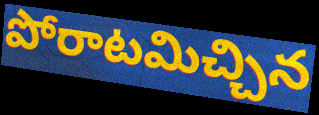
పోరాటమిచ్చిన